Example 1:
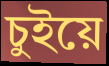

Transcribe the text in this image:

চুইয়ে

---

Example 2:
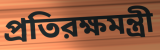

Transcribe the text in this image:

প্রতিরক্ষমন্ত্রী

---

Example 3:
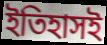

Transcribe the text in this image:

ইতিহাসই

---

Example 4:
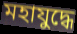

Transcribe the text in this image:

মহাযুদ্ধে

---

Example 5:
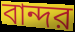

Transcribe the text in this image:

বান্দর